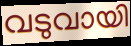
വടുവായി